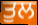
ਤੁਲ